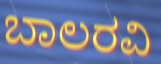
ಬಾಲರವಿ